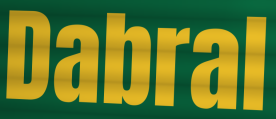
Dabral